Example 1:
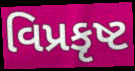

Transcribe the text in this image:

વિપ્રકૃષ્ટ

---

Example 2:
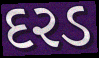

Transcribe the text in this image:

દરડ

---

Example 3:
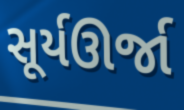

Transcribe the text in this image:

સૂર્યઊર્જા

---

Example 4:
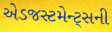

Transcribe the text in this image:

એડજસ્ટમેન્ટ્સની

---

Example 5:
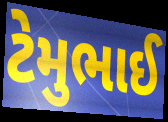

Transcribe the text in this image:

ટેમુભાઈ